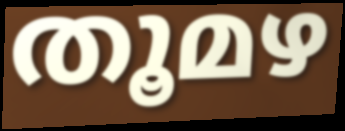
തൂമഴ